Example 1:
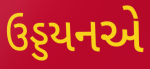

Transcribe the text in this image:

ઉડ્ડયનએ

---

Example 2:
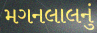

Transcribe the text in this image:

મગનલાલનું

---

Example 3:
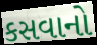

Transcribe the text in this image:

કસવાનો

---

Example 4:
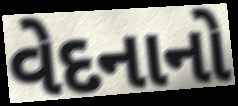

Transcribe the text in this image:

વેદનાનો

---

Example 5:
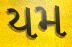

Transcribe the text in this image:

યમ